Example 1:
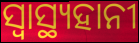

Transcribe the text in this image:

ସ୍ବାସ୍ଥ୍ୟହାନୀ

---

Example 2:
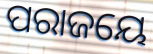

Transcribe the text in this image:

ପରାଜୟେ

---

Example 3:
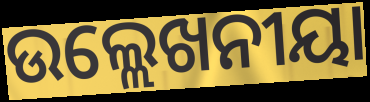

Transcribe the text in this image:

ଉଲ୍ଲେଖନୀୟା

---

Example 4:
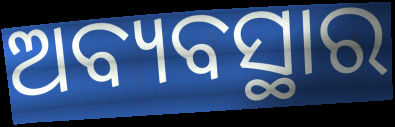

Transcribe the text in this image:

ଅବ୍ୟବସ୍ଥାର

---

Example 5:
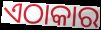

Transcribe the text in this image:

ଏଠାକାର